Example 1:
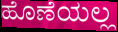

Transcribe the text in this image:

ಹೊಣೆಯಲ್ಲ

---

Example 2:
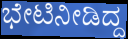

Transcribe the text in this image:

ಭೇಟಿನೀಡಿದ್ದ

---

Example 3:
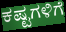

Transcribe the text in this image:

ಕಷ್ಟಗಳಿಗೆ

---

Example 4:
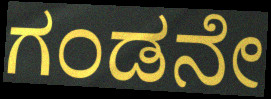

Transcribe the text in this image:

ಗಂಡನೇ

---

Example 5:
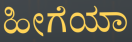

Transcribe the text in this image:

ಹೀಗೆಯಾ